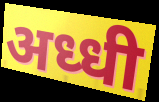
अध्धी